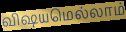
விஷயமெல்லாம்